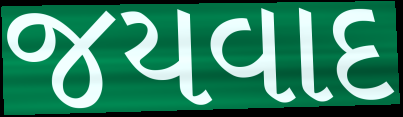
જયવાદ